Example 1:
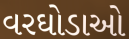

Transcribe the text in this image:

વરઘોડાઓ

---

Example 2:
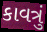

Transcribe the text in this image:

કાવત્રું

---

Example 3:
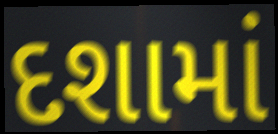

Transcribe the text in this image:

દશામાં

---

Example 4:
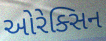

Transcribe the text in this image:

ઓરેક્સિન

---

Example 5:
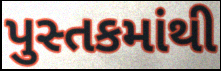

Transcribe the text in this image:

પુસ્તકમાંથી